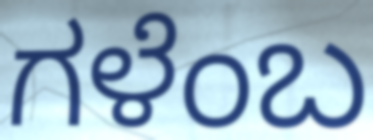
ಗಳೆಂಬ